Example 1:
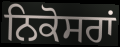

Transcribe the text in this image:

ਨਿਕੋਸਰਾਂ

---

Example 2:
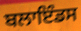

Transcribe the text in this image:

ਬਲਾਇੰਡਸ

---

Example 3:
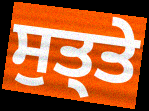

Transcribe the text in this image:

ਸੁਤ੍ਤੇ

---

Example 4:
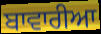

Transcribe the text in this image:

ਬਾਵਾਰੀਆ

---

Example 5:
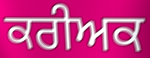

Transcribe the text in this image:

ਕਰੀਅਕ